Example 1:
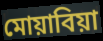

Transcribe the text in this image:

মোয়াবিয়া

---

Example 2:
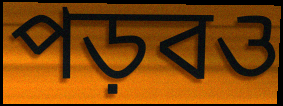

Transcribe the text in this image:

পড়বও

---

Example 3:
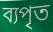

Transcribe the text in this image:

ব্যপৃত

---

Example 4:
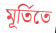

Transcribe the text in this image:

মূর্তিতে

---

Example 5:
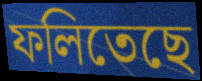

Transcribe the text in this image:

ফলিতেছে